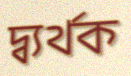
দ্ব্যর্থক